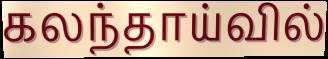
கலந்தாய்வில்